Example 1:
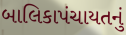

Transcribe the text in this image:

બાલિકાપંચાયતનું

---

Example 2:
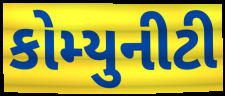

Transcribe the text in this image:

કોમ્યુનીટી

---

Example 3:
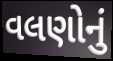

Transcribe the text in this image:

વલણોનું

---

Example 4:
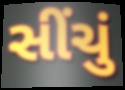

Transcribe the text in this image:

સીંચું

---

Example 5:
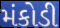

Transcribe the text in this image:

મંકોડી